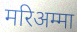
मरिअम्मा